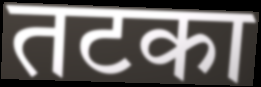
तटका